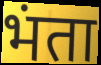
भंता